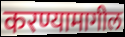
करण्यामागील